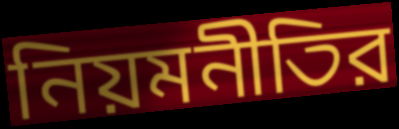
নিয়মনীতির